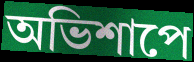
অভিশাপে